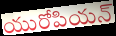
యురోపియన్